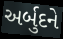
અર્બુદને